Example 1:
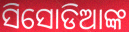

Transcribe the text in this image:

ସିସୋଡିଆଙ୍କ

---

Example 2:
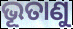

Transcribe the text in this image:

ଭୂତାଣୁ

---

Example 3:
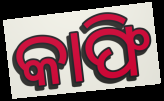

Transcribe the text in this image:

କାଫି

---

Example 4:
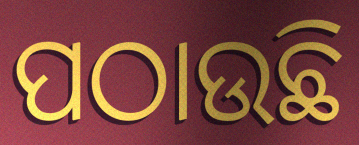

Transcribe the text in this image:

ପଠାଉଛି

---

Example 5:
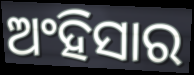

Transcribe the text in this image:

ଅଂହିସାର